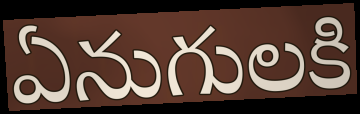
ఏనుగులకి